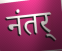
नंतर्